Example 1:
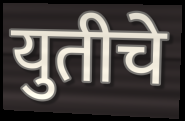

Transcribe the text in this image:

युतीचे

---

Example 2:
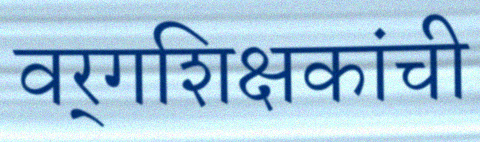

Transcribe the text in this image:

वर्गशिक्षकांची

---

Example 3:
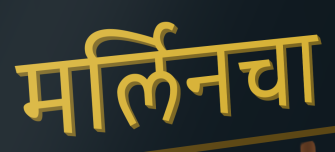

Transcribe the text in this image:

मर्लिनचा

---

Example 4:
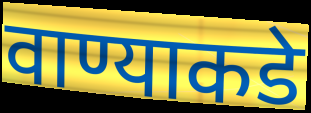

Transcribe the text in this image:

वाण्याकडे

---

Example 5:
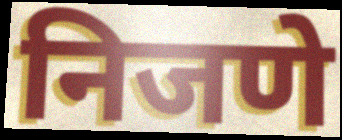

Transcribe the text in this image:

निजणे